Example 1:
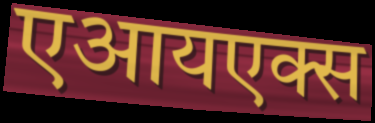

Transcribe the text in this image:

एआयएक्स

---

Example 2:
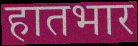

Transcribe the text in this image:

हातभार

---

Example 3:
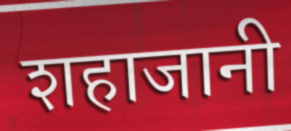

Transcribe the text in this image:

शहाजानी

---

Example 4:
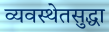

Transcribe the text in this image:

व्यवस्थेतसुद्धा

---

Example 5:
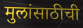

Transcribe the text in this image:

मुलांसाठीची